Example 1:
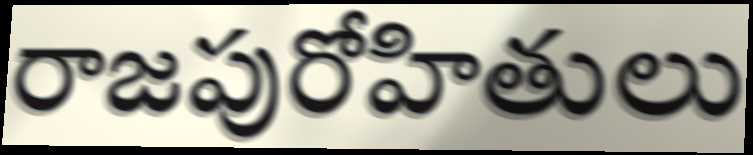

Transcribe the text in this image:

రాజపురోహితులు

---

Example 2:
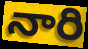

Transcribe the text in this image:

నారి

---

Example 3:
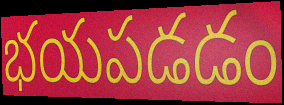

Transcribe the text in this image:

భయపడడం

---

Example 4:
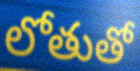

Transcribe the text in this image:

లోతుతో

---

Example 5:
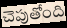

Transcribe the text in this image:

చెపుతోంది